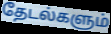
தேடல்களும்